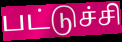
பட்டுச்சி